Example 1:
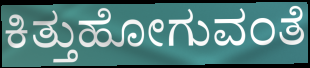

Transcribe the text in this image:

ಕಿತ್ತುಹೋಗುವಂತೆ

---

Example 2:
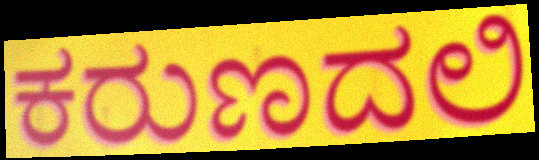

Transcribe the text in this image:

ಕರುಣದಲಿ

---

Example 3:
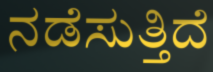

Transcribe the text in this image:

ನಡೆಸುತ್ತಿದೆ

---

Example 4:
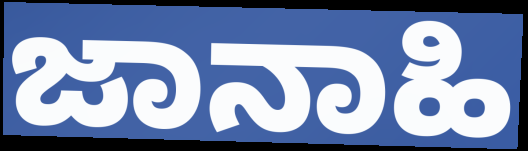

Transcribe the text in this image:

ಜಾನಾಹಿ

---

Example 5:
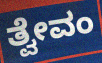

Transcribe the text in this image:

ತ್ವೇವಂ